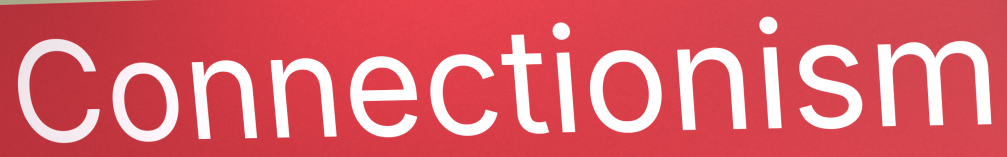
Connectionism